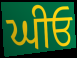
ਘੀਓ